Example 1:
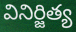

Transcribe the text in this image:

వినిర్జిత్య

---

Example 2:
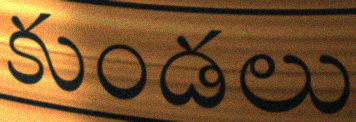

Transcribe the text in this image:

కుండలు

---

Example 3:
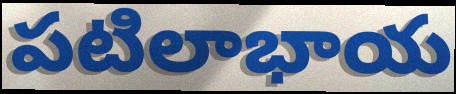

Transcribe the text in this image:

పటిలాభాయ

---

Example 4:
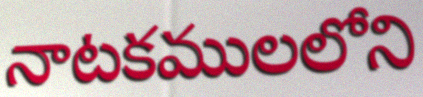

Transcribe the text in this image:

నాటకములలోని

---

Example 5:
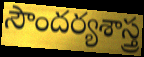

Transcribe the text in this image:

సౌందర్యశాస్త్ర